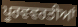
ਪੂਰਵਵਰਤੀਆਂ